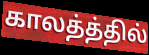
காலத்த்தில்